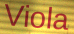
Viola